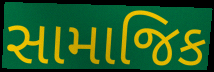
સામાજિક